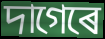
দাগেৰে